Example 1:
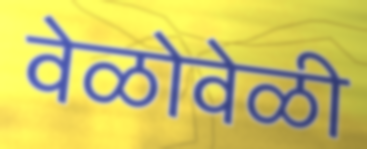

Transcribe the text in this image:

वेळोवेळी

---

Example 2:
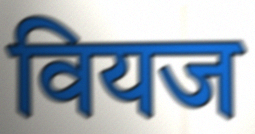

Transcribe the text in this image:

वियज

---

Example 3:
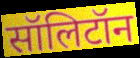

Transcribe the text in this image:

सॉलिटॉन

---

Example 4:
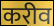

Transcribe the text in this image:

करीव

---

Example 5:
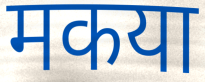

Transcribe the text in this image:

मकया